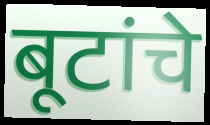
बूटांचे